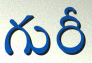
గురీ